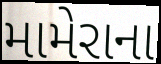
મામેરાના